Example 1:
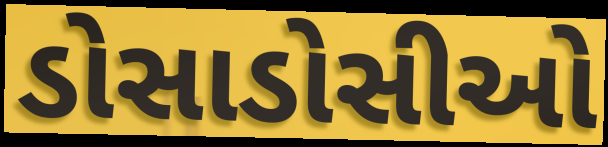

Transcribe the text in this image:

ડોસાડોસીઓ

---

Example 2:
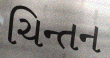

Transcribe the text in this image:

ચિન્તન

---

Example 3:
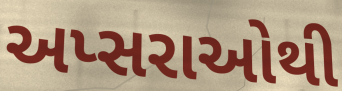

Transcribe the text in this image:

અપ્સરાઓથી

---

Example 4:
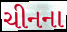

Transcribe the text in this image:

ચીનના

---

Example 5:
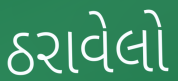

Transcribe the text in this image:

ઠરાવેલો